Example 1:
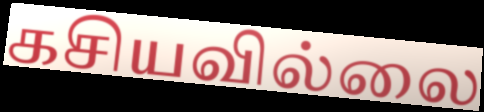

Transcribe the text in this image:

கசியவில்லை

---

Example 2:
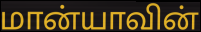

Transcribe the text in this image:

மான்யாவின்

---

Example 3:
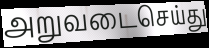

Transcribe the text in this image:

அறுவடைசெய்து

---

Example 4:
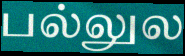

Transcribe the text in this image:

பல்லுல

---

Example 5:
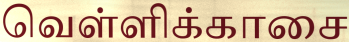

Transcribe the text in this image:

வெள்ளிக்காசை